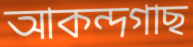
আকন্দগাছ